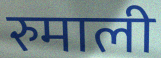
रुमाली